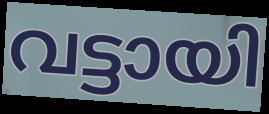
വട്ടായി